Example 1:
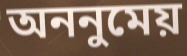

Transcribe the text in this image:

অননুমেয়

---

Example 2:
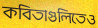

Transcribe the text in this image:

কবিতাগুলিতেও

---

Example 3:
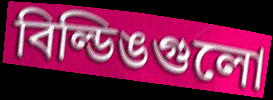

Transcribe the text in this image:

বিল্ডিঙগুলো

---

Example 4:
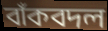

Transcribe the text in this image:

বাঁকবদল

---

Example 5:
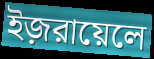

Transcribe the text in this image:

ইজ়রায়েলে